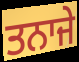
ਤਨਾਜੇ